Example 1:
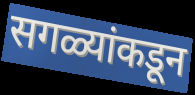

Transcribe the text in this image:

सगळ्यांकडून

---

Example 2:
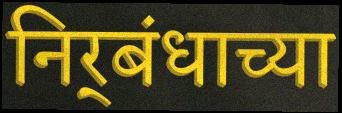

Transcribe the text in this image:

निर्बंधाच्या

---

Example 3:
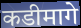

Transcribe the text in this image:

कडीमागे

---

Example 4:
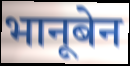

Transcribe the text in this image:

भानूबेन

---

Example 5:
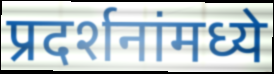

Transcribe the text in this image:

प्रदर्शनांमध्ये